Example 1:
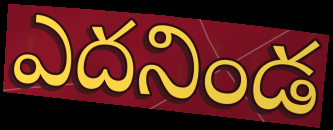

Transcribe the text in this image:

ఎదనిండ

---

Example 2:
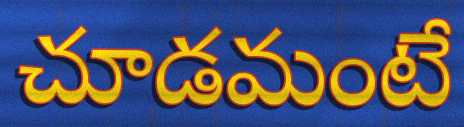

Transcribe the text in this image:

చూడమంటే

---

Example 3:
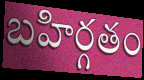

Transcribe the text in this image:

బహిర్గతం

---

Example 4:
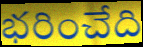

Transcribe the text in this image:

భరించేది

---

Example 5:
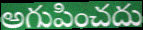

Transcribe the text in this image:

అగుపించదు